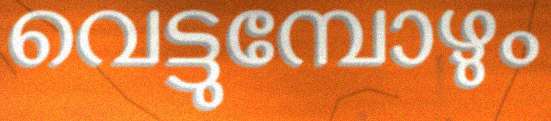
വെട്ടുമ്പോഴും